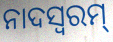
ନାଦସ୍ଵରମ୍